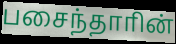
பசைந்தாரின்